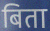
बिता